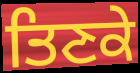
ਤਿਣਕੇ